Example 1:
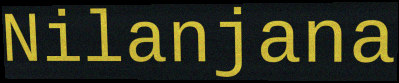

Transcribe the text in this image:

Nilanjana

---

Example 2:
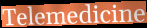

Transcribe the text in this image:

Telemedicine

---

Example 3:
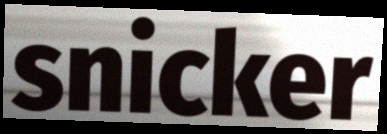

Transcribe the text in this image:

snicker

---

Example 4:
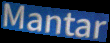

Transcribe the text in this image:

Mantar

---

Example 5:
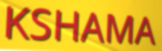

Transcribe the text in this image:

KSHAMA